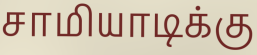
சாமியாடிக்கு